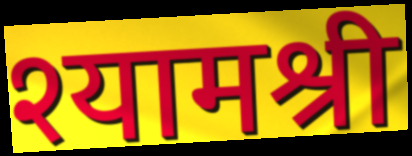
श्यामश्री